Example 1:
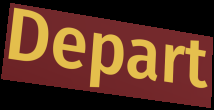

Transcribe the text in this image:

Depart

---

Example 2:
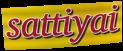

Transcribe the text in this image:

sattiyai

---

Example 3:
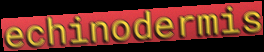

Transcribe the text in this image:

echinodermis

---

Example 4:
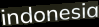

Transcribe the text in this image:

indonesia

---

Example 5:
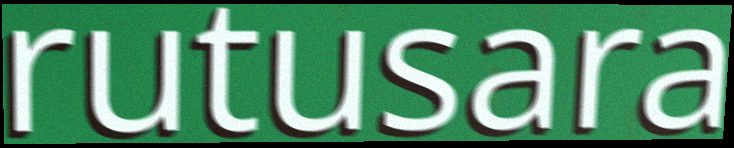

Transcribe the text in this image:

rutusara